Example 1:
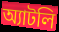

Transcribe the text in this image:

অ্যাটলি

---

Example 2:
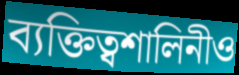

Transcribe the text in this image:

ব্যক্তিত্বশালিনীও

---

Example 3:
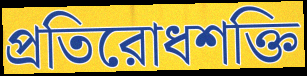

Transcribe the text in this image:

প্রতিরোধশক্তি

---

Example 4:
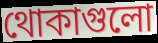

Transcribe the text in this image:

থোকাগুলো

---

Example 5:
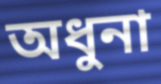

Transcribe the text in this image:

অধুনা